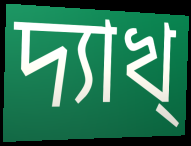
দ্যাখ্